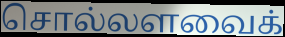
சொல்லளவைக்